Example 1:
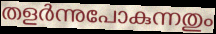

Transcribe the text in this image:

തളർന്നുപോകുന്നതും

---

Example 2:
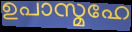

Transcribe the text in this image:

ഉപാസ്മഹേ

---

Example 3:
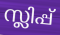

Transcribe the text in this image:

സ്ലിപ്പ്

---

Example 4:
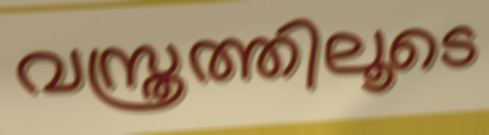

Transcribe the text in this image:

വസ്ത്രത്തിലൂടെ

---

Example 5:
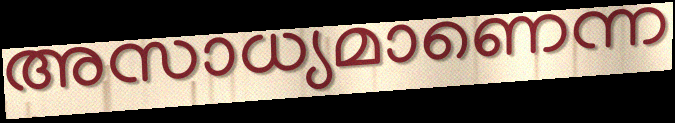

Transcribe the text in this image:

അസാധ്യമാണെന്ന